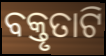
ବକ୍ତୃତାଟି